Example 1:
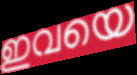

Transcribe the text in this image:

ഇവയെ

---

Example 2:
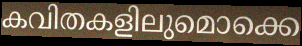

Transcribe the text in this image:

കവിതകളിലുമൊക്കെ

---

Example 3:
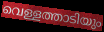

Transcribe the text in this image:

വെള്ളത്താടിയും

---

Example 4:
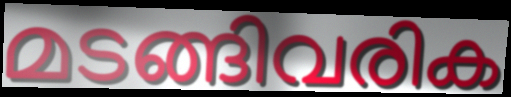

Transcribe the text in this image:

മടങ്ങിവരിക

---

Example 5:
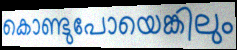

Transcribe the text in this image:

കൊണ്ടുപോയെങ്കിലും